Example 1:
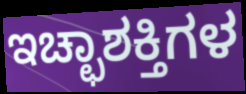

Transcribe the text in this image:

ಇಚ್ಛಾಶಕ್ತಿಗಳ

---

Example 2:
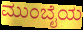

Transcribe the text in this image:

ಮುಂಬೈಯ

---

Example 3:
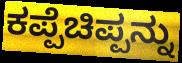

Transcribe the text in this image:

ಕಪ್ಪೆಚಿಪ್ಪನ್ನು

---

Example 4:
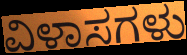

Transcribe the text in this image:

ವಿಳಾಸಗಳು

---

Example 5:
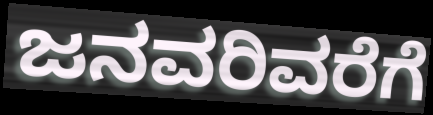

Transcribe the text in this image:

ಜನವರಿವರೆಗೆ